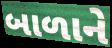
બાળાને